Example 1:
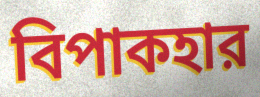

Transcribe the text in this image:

বিপাকহার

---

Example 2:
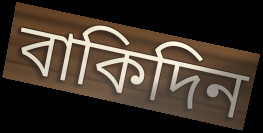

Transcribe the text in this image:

বাকিদিন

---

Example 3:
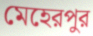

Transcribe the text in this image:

মেহেরপুর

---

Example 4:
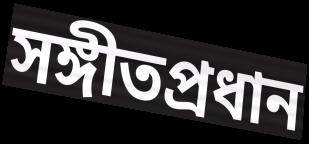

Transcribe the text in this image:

সঙ্গীতপ্রধান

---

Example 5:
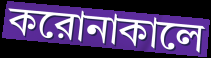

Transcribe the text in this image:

করোনাকালে